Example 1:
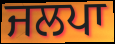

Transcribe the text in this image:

ਜਲਪਾ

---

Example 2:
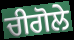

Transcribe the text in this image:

ਚੀਗੋਲੇ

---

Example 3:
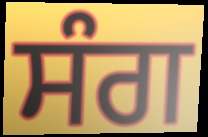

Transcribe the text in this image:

ਸੰਗ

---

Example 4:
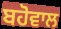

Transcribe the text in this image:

ਬਹੋਵਾਲ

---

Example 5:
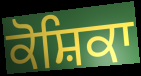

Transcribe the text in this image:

ਕੋਸ਼ਿਕਾ